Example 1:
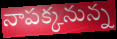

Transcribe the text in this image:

నాపక్కనున్న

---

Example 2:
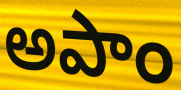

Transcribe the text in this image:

అపాం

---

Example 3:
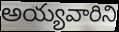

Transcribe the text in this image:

అయ్యవారిని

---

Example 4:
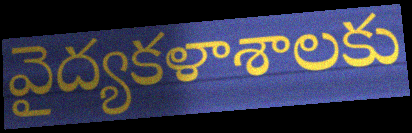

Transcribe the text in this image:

వైద్యకళాశాలకు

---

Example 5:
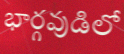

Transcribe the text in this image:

భార్గవుడిలో